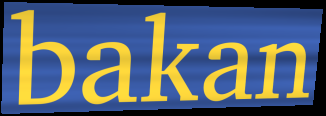
bakan